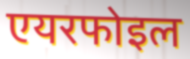
एयरफोइल